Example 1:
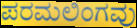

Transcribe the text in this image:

ಪರಮಲಿಂಗವು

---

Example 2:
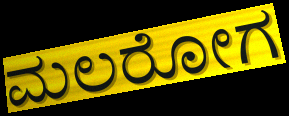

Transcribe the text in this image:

ಮಲರೋಗ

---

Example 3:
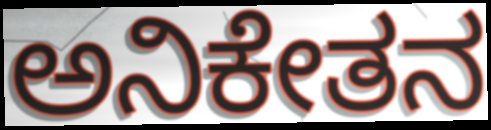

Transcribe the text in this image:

ಅನಿಕೇತನ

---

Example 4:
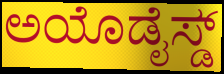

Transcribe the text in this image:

ಅಯೊಡೈಸ್ಡ್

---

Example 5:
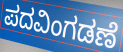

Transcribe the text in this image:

ಪದವಿಂಗಡಣೆ